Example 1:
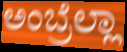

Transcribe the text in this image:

ಅಂಬ್ರೆಲ್ಲಾ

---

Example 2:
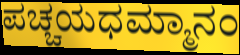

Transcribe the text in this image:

ಪಚ್ಚಯಧಮ್ಮಾನಂ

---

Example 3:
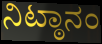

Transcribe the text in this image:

ನಿಟ್ಠಾನಂ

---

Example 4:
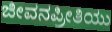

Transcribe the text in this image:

ಜೀವನಪ್ರೀತಿಯು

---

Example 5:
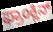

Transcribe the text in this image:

ಫ್ರಾಂಕ್ಲಿನ್